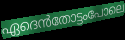
ഏദെൻതോട്ടംപോലെ